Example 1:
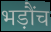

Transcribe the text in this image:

भड़ौंच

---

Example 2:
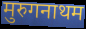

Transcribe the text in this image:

मुरुगनाथम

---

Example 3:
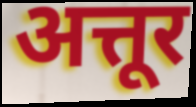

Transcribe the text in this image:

अत्तूर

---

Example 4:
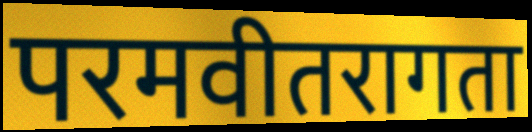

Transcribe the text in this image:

परमवीतरागता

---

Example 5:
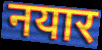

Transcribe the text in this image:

नयार